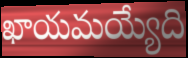
ఖాయమయ్యేది